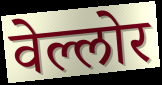
वेल्लोर